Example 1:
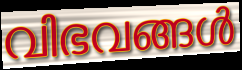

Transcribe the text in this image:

വിഭവങ്ങൾ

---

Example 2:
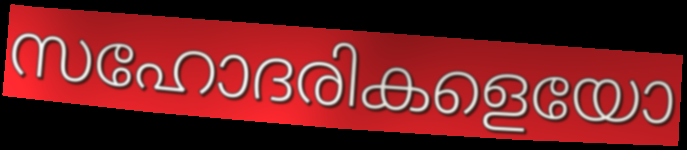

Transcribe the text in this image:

സഹോദരികളെയോ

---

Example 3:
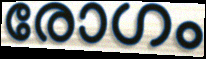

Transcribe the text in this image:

രോഗം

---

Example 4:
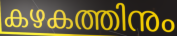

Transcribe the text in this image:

കഴകത്തിനും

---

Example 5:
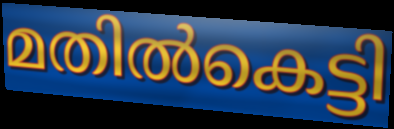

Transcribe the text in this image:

മതിൽകെട്ടി